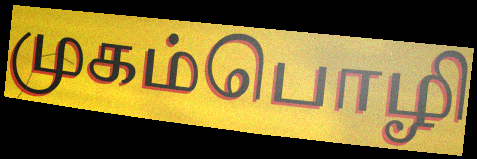
முகம்பொழி